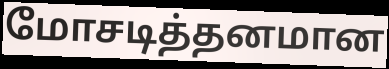
மோசடித்தனமான